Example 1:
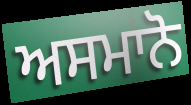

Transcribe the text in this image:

ਅਸਮਾਨੋ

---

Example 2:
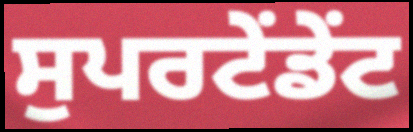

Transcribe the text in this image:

ਸੁਪਰਟੇਂਡੇਂਟ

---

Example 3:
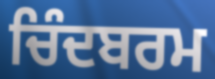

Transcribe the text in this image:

ਚਿੰਦਬਰਮ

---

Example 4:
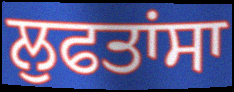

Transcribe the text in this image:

ਲੁਫਤਾਂਸਾ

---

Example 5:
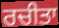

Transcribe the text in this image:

ਰਚੀਤਾ